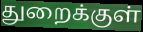
துறைக்குள்